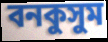
বনকুসুম